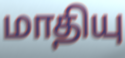
மாதியு